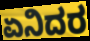
ಏನಿದರ